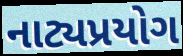
નાટ્યપ્રયોગ